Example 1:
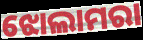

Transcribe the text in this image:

ଝୋଲାମରା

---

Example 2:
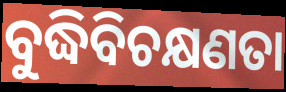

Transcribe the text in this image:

ବୁଦ୍ଧିବିଚକ୍ଷଣତା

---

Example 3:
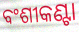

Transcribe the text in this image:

ବଂଶୀକଣ୍ଟା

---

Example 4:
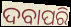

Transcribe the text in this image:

ଦବାପରି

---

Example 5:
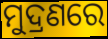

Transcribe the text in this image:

ମୁଦ୍ରଣରେ